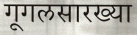
गूगलसारख्या